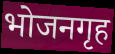
भोजनगृह